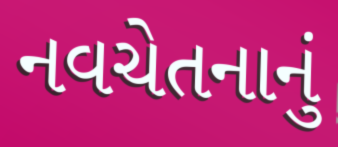
નવચેતનાનું